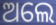
ଅଲେ